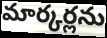
మార్కర్లను